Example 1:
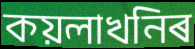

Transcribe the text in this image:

কয়লাখনিৰ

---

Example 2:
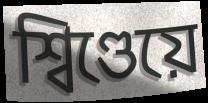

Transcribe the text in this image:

শ্বিণ্ডেয়ে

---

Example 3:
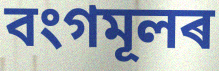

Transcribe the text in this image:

বংগমূলৰ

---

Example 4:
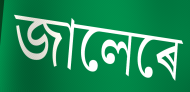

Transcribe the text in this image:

জালেৰে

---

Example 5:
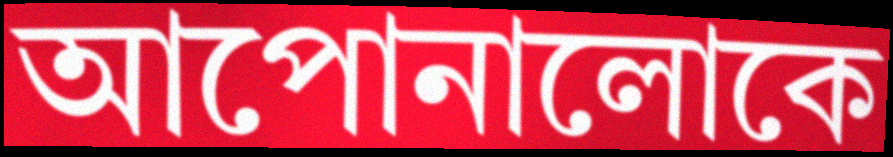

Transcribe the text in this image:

আপোনালোকে